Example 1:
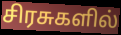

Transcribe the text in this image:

சிரசுகளில்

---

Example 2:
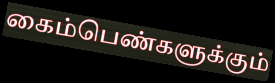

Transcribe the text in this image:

கைம்பெண்களுக்கும்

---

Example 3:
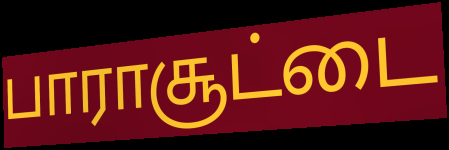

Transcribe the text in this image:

பாராசூட்டை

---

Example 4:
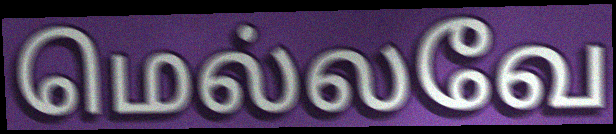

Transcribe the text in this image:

மெல்லவே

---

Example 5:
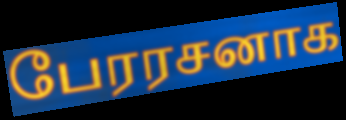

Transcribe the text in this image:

பேரரசனாக